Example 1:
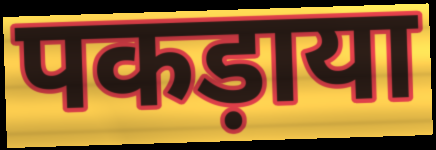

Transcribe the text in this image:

पकड़ाया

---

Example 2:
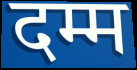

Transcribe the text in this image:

दम्म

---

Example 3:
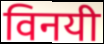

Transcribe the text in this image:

विनयी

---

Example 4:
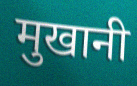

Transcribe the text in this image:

मुखानी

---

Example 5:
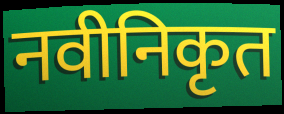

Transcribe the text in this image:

नवीनिकृत